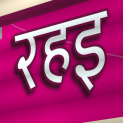
रहइ